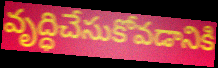
వృద్ధిచేసుకోవడానికి